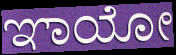
ಞಾಯೋ